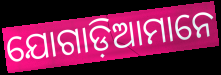
ଯୋଗାଡ଼ିଆମାନେ